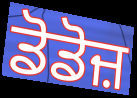
ਡੋਡੋਜ਼